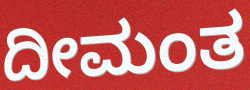
ದೀಮಂತ